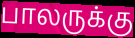
பாலருக்கு